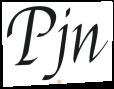
Pjn